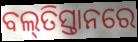
ବଲ୍‌ତିସ୍ତାନରେ